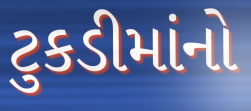
ટુકડીમાંનો